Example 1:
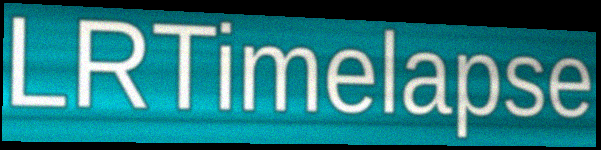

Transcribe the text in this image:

LRTimelapse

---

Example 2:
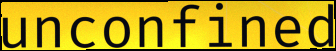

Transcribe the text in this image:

unconfined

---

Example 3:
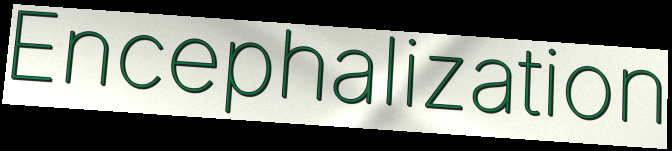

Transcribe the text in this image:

Encephalization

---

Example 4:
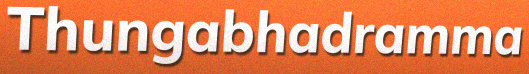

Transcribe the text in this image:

Thungabhadramma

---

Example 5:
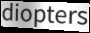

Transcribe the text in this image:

diopters